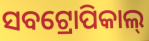
ସବଟ୍ରୋପିକାଲ୍